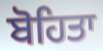
ਬੋਹਿਤਾ